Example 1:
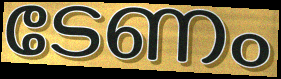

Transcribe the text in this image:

ടേണം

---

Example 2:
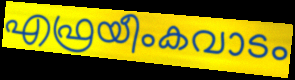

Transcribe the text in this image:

എഫ്രയീംകവാടം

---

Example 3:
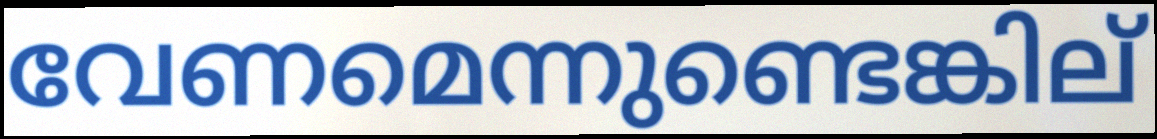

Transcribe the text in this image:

വേണമെന്നുണ്ടെങ്കില്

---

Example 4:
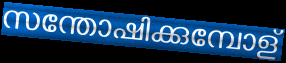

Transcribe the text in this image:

സന്തോഷിക്കുമ്പോള്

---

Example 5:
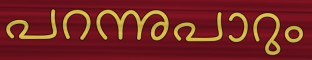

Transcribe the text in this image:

പറന്നുപാറും